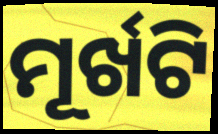
ମୂର୍ଖଟି